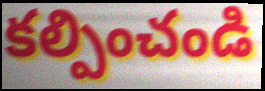
కల్పించండి